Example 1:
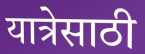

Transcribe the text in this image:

यात्रेसाठी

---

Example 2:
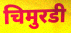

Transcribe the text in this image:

चिमुरडी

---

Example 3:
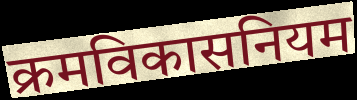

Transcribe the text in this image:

क्रमविकासनियम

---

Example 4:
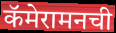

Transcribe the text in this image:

कॅमेरामनची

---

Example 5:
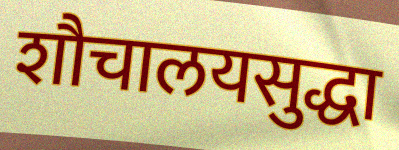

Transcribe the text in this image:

शौचालयसुद्धा